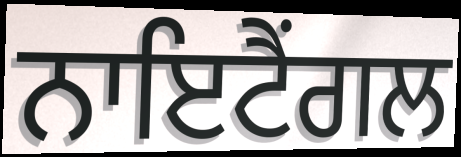
ਨਾਇਟੈਂਗਲ